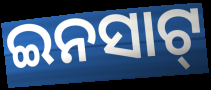
ଇନସାଟ୍